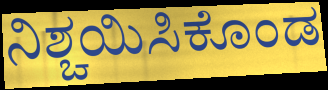
ನಿಶ್ಚಯಿಸಿಕೊಂಡ